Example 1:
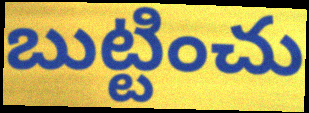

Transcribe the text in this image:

బుట్టించు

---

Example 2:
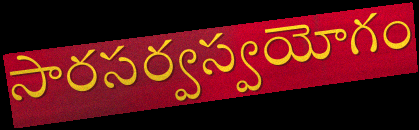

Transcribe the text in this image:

సారసర్వస్వయోగం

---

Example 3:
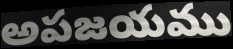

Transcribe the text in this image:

అపజయము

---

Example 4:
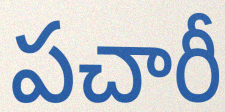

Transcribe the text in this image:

పచారీ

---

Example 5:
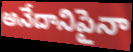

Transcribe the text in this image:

అనేదానిపైనా